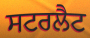
ਸਟਰਲੈਟ